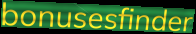
bonusesfinder